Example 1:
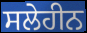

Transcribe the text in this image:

ਸਲੇਹੀਨ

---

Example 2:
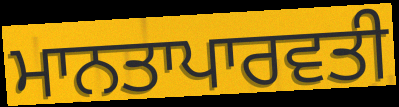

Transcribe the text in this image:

ਮਾਨਤਾਪਾਰਵਤੀ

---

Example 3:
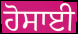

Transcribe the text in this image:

ਹੋਸਾਈ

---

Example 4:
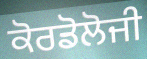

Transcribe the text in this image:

ਕੋਰਡੋਲੋਜੀ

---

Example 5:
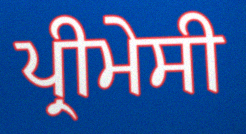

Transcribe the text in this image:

ਪ੍ਰੀਮੇਸੀ